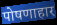
पोषणाहार